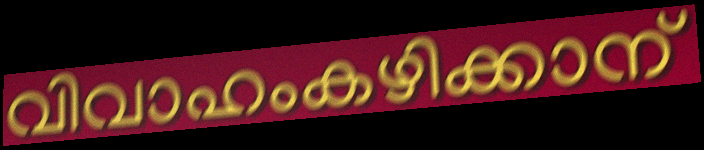
വിവാഹംകഴിക്കാന്